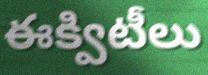
ఈక్విటీలు